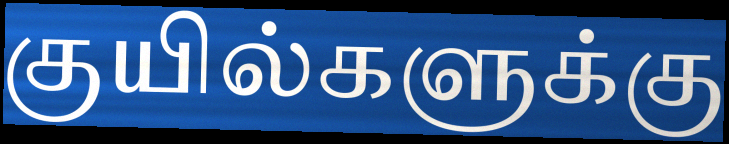
குயில்களுக்கு